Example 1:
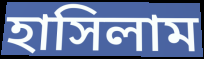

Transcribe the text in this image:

হাসিলাম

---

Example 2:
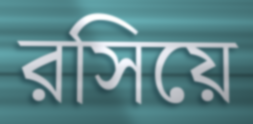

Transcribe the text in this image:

রসিয়ে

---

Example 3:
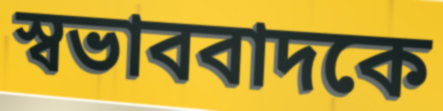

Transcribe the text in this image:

স্বভাববাদকে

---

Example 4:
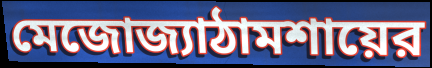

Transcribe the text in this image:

মেজোজ্যাঠামশায়ের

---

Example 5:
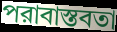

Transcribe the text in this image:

পরাবাস্তবতা